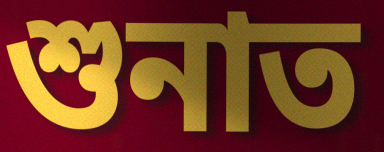
শুনাত